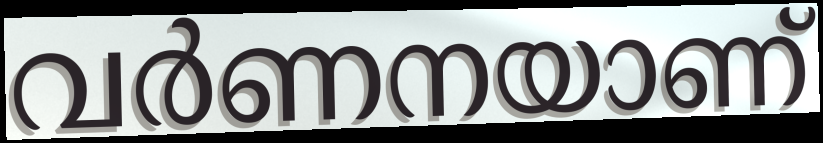
വർണനയാണ്